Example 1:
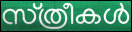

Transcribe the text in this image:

സ്‌ത്രീകൾ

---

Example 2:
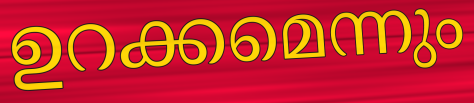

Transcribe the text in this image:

ഉറക്കമെന്നും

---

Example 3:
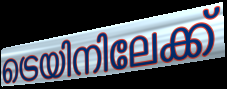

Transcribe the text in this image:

ട്രെയിനിലേക്ക്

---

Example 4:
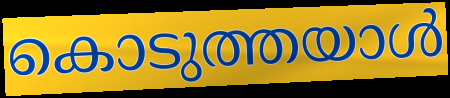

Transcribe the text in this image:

കൊടുത്തയാൾ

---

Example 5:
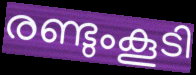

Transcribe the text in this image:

രണ്ടുംകൂടി